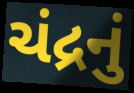
ચંદ્રનું